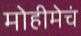
मोहीमेचं